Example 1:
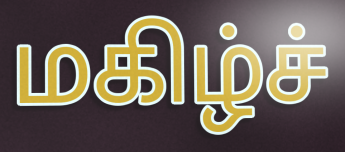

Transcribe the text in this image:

மகிழ்ச்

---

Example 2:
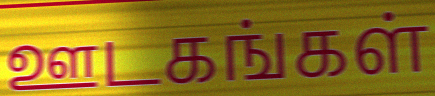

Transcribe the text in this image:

ஊடகங்கள்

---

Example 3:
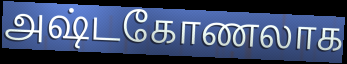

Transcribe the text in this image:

அஷ்டகோணலாக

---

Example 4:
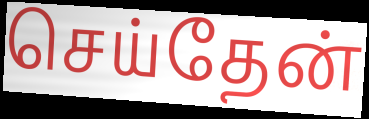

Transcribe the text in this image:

செய்தேன்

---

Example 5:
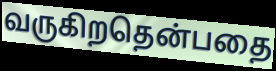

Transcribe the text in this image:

வருகிறதென்பதை